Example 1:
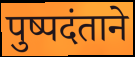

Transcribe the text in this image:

पुष्पदंताने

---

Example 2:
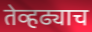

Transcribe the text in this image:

तेव्हढ्याच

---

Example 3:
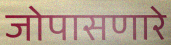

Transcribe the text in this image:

जोपासणारे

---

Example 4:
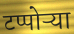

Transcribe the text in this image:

टप्पोऱ्या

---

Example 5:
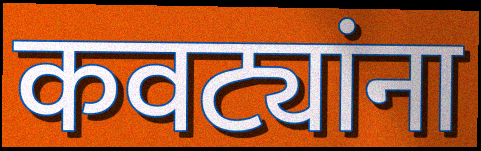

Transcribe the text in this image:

कवट्यांना